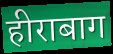
हीराबाग